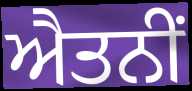
ਐਤਨੀਂ